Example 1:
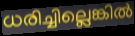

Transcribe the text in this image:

ധരിച്ചില്ലെങ്കിൽ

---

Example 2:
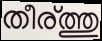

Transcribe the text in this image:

തീര്ത്തു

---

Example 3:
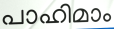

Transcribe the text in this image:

പാഹിമാം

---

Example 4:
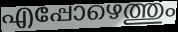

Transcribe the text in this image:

എപ്പോഴെത്തും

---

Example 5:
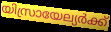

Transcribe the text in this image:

യിസ്രായേല്യർക്ക്